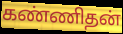
கண்ணிதன்